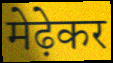
मेढ़ेकर